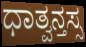
ಧಾತ್ವನ್ತಸ್ಸ